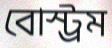
বোস্ট্রম